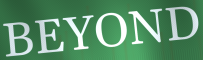
BEYOND